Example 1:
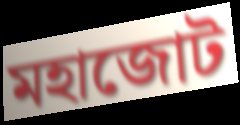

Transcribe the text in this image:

মহাজোট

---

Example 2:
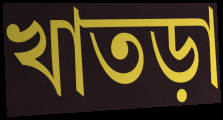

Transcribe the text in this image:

খাতড়া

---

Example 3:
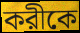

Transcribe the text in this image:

করীকে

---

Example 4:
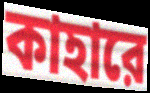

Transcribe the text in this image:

কাহারে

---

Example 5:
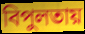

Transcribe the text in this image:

বিপুলতায়